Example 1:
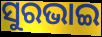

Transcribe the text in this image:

ସୁରଭାଇ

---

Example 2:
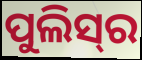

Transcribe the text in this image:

ପୁଲିସ୍‍ର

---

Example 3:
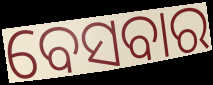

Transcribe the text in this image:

ବେସବାର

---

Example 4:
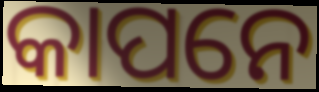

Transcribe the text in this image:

କାପନେ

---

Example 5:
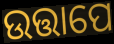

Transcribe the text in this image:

ଉତ୍ତାପେ